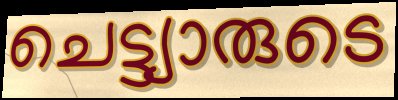
ചെട്ട്യാരുടെ